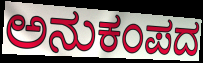
ಅನುಕಂಪದ